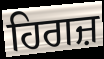
ਹਿਗਜ਼